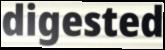
digested